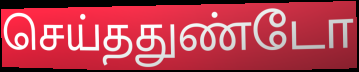
செய்ததுண்டோ